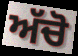
ਅੱਚੋ